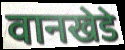
वानखेडे